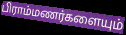
பிராம்மணர்களையும்